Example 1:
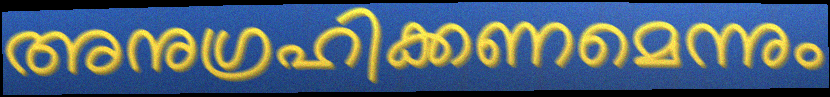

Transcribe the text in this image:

അനുഗ്രഹിക്കണമെന്നും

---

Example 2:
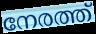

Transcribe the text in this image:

നേരത്ത്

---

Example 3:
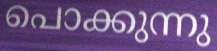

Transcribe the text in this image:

പൊക്കുന്നു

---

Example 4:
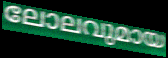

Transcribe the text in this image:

ലോലവുമായ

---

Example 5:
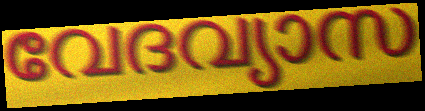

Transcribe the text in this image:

വേദവ്യാസ